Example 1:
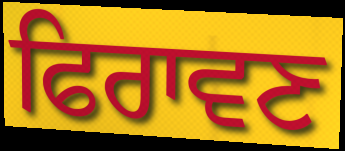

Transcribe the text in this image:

ਫਿਰਾਵਣ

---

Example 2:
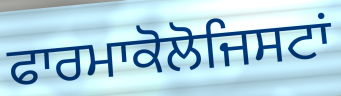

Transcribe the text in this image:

ਫਾਰਮਾਕੋਲੋਜਿਸਟਾਂ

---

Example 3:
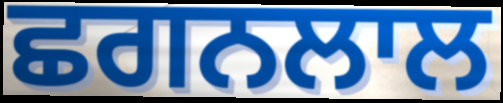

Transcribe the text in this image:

ਛਗਨਲਾਲ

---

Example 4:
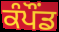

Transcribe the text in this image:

ਕੰਪੌਂਡ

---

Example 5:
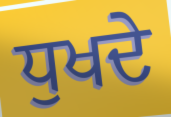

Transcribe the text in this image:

ਧੁਖਦੇ